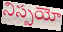
నిస్సయో